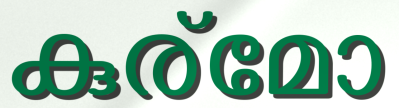
കുര്മോ